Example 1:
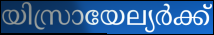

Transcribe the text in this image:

യിസ്രായേല്യർക്ക്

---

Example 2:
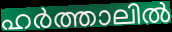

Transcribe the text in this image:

ഹർത്താലിൽ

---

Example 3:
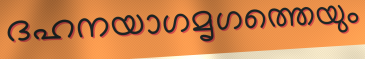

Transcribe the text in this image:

ദഹനയാഗമൃഗത്തെയും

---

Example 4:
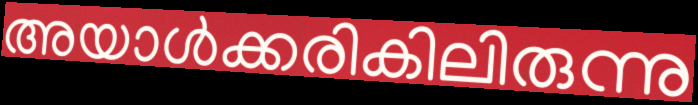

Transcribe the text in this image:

അയാൾക്കരികിലിരുന്നു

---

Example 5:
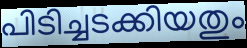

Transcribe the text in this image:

പിടിച്ചടക്കിയതും